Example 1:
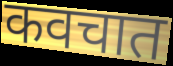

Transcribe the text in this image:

कवचात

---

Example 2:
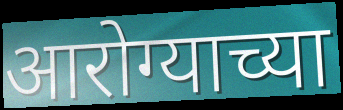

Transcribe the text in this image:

आरोग्याच्या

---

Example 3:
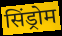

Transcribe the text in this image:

सिंड्रोम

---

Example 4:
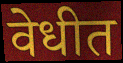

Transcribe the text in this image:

वेधीत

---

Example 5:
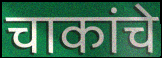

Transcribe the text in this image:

चाकांचे